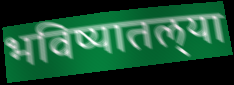
भविष्यातल्या